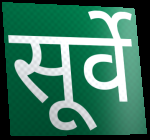
सूर्वे